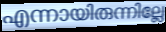
എന്നായിരുന്നില്ലേ